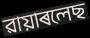
ৱায়াৰলেছ